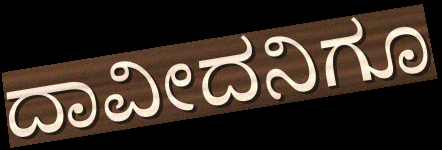
ದಾವೀದನಿಗೂ